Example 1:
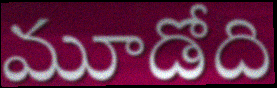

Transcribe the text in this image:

మూడోది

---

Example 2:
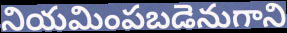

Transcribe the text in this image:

నియమింపబడెనుగాని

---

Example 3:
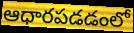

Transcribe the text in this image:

ఆధారపడడంలో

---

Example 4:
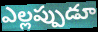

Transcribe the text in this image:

ఎల్లప్పుడూ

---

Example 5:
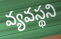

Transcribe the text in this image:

వ్యవస్థని